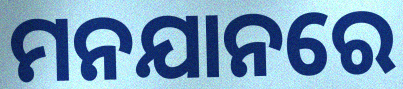
ମନଯାନରେ